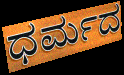
ಧರ್ಮದ